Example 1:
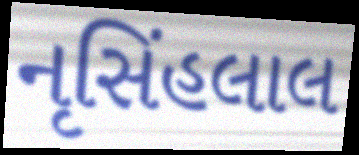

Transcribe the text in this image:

નૃસિંહલાલ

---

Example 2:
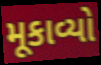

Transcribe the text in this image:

મૂકાવ્યો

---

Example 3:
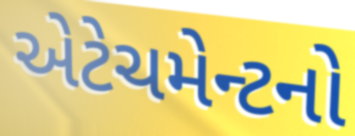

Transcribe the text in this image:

એટેચમેન્ટનો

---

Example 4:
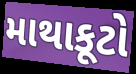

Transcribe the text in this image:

માથાકૂટો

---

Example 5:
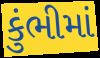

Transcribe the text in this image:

કુંભીમાં